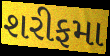
શરીફમા